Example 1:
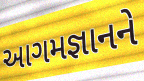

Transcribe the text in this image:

આગમજ્ઞાનને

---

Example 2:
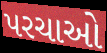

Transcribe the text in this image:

પરચાઓ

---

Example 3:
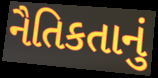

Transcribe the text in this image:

નૈતિકતાનું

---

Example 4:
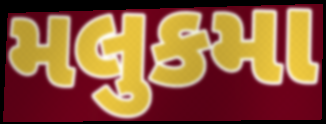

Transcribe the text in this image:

મલુકમા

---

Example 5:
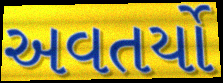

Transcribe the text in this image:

અવતર્યો